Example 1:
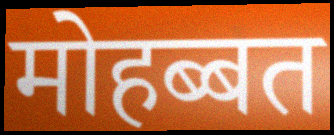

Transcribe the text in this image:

मोहब्बत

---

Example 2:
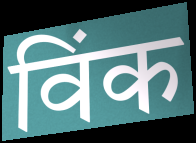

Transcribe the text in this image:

विंक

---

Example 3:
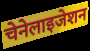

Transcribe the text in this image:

चेनेलाइजेशन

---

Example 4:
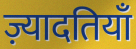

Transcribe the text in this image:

ज़्यादतियाँ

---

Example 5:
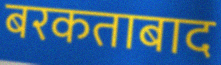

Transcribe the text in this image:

बरकताबाद